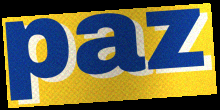
paz